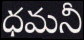
ధమనీ